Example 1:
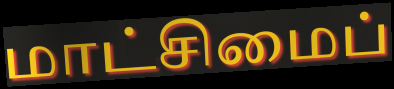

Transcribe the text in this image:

மாட்சிமைப்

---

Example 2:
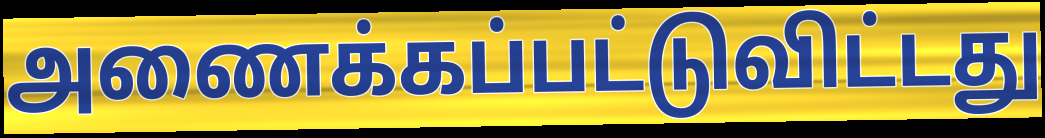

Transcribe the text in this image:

அணைக்கப்பட்டுவிட்டது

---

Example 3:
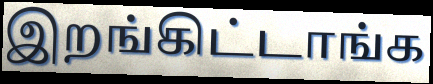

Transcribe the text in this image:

இறங்கிட்டாங்க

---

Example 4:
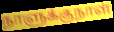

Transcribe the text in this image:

நாளுக்குநாள்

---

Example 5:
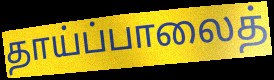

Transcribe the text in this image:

தாய்ப்பாலைத்